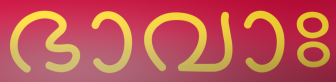
ഭാവാഃ